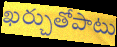
ఖర్చుతోపాటు